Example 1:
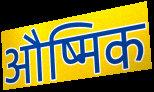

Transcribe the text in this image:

औष्मिक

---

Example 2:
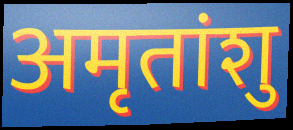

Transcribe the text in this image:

अमृतांशु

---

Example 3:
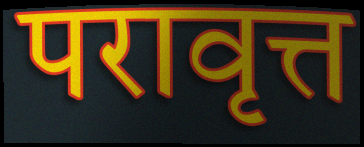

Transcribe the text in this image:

परावृत्त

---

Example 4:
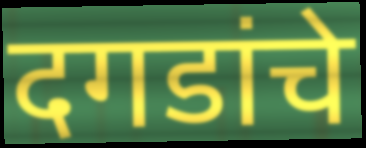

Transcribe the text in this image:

दगडांचे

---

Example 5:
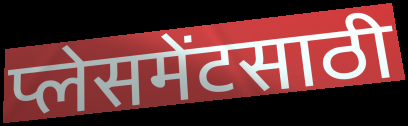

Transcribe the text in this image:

प्लेसमेंटसाठी